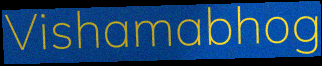
Vishamabhog